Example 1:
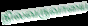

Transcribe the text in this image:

நிலவருவாயை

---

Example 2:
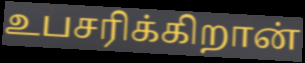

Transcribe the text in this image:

உபசரிக்கிறான்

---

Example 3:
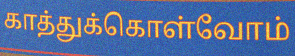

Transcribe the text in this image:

காத்துக்கொள்வோம்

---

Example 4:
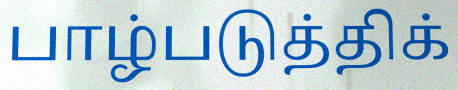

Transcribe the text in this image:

பாழ்படுத்திக்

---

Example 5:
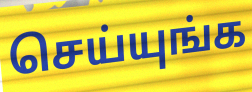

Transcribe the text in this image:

செய்யுங்க